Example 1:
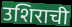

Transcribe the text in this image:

उशिराची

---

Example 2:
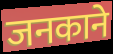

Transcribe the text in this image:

जनकाने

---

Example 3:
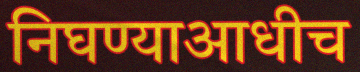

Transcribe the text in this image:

निघण्याआधीच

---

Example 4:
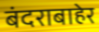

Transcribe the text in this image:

बंदराबाहेर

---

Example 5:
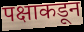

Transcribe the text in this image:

पक्षाकडून